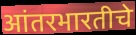
आंतरभारतीचे